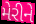
મેરીને